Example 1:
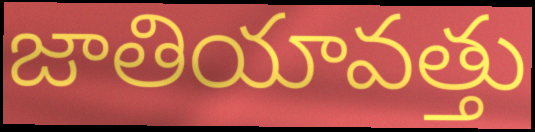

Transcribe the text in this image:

జాతియావత్తు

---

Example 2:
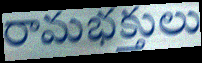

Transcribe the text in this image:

రామభక్తులు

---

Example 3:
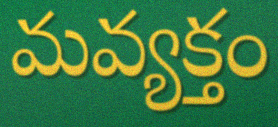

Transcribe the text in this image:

మవ్యక్తం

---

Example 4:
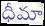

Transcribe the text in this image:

ధీమా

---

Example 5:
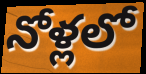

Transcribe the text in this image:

నోళ్లలో